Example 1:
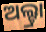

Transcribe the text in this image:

ଅଲ୍ଟ୍ରା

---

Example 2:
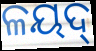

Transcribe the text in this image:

ଳୟଦ୍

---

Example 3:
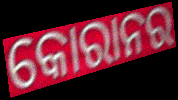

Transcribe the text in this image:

କୋରାନର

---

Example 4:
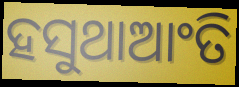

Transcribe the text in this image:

ହସୁଥାଆଂତି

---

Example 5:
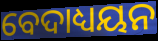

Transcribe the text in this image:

ବେଦାଧ୍ୟୟନ